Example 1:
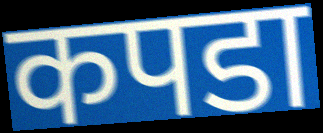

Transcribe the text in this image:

कपडा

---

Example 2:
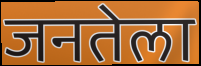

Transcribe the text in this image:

जनतेला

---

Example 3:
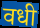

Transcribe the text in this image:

वधी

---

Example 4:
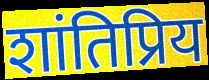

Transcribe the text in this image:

शांतिप्रिय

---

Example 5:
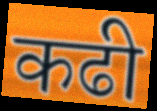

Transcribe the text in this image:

कढी